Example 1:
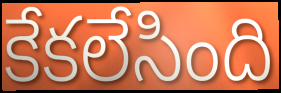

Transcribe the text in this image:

కేకలేసింది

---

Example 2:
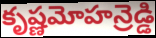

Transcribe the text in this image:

కృష్ణమోహన్రెడ్డి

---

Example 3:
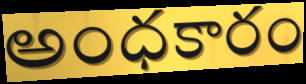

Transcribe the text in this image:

అంధకారం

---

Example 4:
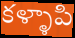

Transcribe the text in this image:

కళ్ళాపి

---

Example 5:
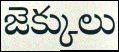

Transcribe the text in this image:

జెక్కులు